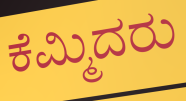
ಕೆಮ್ಮಿದರು